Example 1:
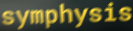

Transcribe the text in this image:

symphysis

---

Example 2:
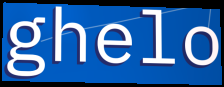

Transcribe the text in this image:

ghelo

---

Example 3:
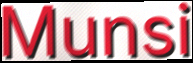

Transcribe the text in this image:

Munsi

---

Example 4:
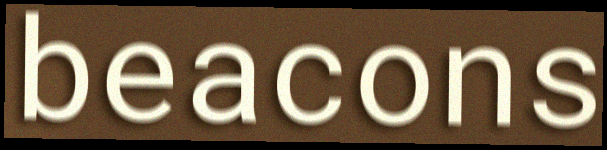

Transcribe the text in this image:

beacons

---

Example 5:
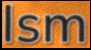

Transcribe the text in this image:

Ism